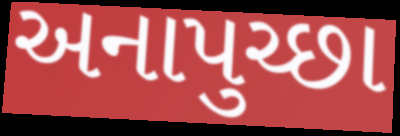
અનાપુચ્છા